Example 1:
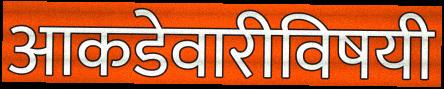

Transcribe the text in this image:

आकडेवारीविषयी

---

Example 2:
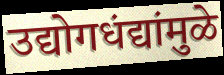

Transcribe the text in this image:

उद्योगधंद्यांमुळे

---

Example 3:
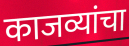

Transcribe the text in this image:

काजव्यांचा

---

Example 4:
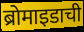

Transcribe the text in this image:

ब्रोमाइडाची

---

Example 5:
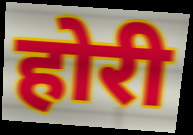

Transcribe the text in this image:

होरी